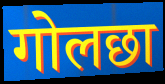
गोलछा